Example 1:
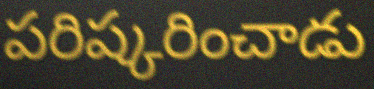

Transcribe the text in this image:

పరిష్కరించాడు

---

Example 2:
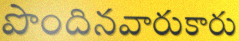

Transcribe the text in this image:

పొందినవారుకారు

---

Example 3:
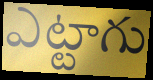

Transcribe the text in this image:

ఎట్టాగు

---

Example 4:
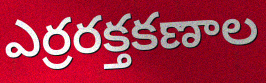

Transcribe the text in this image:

ఎర్రరక్తకణాల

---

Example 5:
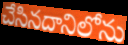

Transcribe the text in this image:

చేసినదానిలోను